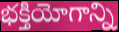
భక్తియోగాన్ని